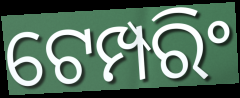
ଟେମ୍ପରିଂ